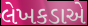
લેખકડાએ